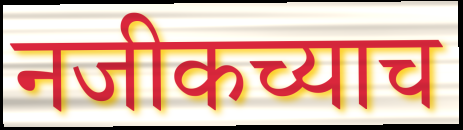
नजीकच्याच